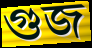
গুজ